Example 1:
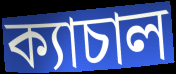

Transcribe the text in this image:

ক্যাচাল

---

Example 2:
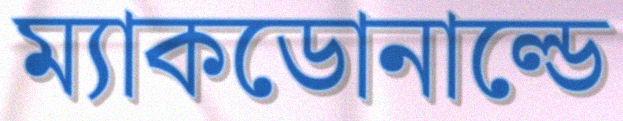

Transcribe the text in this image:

ম্যাকডোনাল্ডে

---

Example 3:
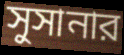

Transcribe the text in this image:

সুসানার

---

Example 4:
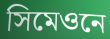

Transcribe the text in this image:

সিমেওনে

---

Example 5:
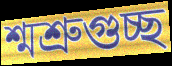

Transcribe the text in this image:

শ্মশ্রুগুচ্ছ